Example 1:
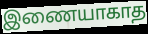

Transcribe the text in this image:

இணையாகாத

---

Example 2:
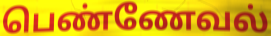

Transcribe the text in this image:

பெண்ணேவல்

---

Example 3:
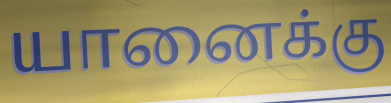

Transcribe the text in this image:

யானைக்கு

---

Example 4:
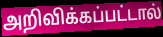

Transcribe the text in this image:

அறிவிக்கப்பட்டால்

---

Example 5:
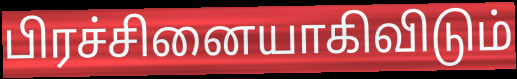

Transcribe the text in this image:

பிரச்சினையாகிவிடும்